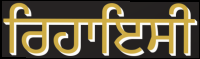
ਰਿਹਾਇਸੀ